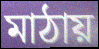
মাঠায়